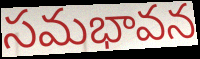
సమభావన